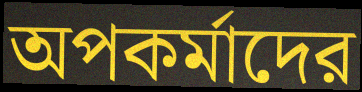
অপকর্মাদের